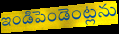
ఇండిపెండెంట్లను